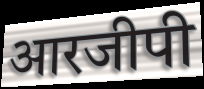
आरजीपी